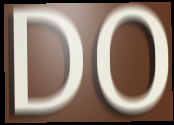
DO